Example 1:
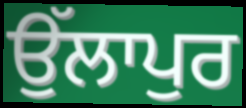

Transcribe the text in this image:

ਉੱਲਾਪੁਰ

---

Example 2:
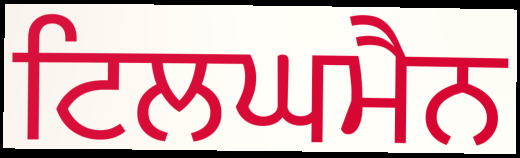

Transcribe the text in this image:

ਟਿਲਘਮੈਨ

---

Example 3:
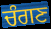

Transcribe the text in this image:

ਚੰਗਣ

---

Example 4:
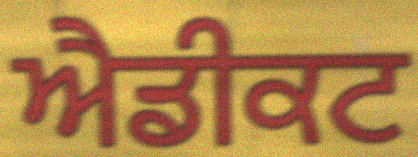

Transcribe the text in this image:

ਐਡੀਕਟ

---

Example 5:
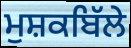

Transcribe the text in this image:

ਮੁਸ਼ਕਬਿੱਲੇ